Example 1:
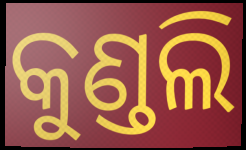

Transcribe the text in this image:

କୁଣ୍ଡଲି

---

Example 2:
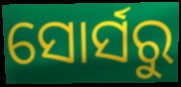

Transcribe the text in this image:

ସୋର୍ସରୁ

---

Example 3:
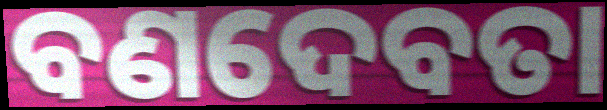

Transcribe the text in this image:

ବଣଦେବତା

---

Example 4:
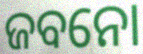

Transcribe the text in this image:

ଜବନୋ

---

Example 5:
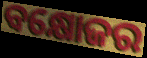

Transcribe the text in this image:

ବକ୍ଷୋଜର